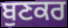
ਬੁਣਕਰ